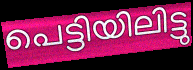
പെട്ടിയിലിട്ടു